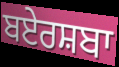
ਬਏਰਸ਼ਬਾ